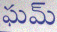
ఘమ్